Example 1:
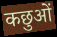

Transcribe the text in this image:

कछुओं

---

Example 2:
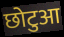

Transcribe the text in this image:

छोटुआ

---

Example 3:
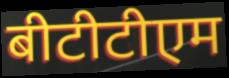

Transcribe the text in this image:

बीटीटीएम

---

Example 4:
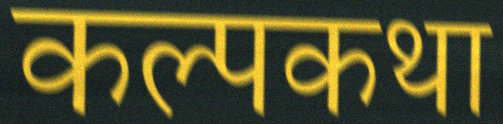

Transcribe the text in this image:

कल्पकथा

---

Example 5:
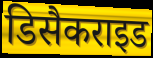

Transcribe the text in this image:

डिसैकराइड